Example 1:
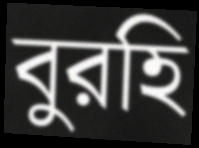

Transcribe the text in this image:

বুরহি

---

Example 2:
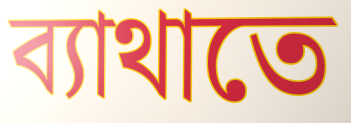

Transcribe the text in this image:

ব্যাথাতে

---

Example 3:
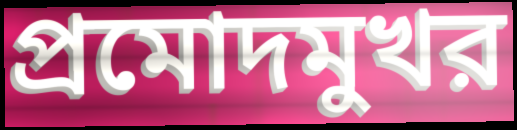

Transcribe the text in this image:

প্রমোদমুখর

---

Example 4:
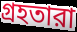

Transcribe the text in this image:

গ্রহতারা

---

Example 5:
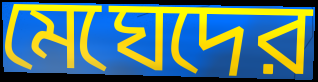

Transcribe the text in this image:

মেঘেদের